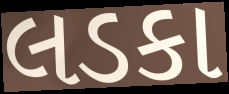
લડકા